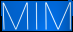
MIM